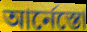
আর্নেস্তো